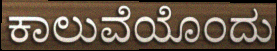
ಕಾಲುವೆಯೊಂದು